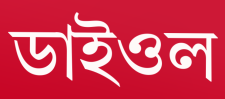
ডাইওল